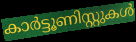
കാർട്ടൂണിസ്റ്റുകൾ